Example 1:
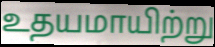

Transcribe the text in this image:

உதயமாயிற்று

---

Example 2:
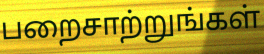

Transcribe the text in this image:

பறைசாற்றுங்கள்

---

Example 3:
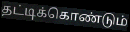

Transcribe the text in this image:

தட்டிக்கொண்டும்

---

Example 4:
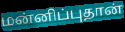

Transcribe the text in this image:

மன்னிப்புதான்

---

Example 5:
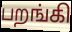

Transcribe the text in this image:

பறங்கி